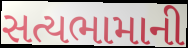
સત્યભામાની